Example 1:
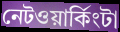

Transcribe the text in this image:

নেটওয়ার্কিংটা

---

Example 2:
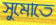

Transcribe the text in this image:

সুমোতে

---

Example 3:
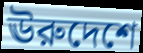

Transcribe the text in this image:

ঊরুদেশে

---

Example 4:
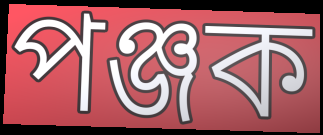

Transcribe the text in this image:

পঞ্জক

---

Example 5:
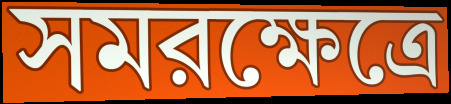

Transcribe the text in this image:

সমরক্ষেত্রে